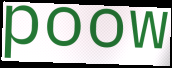
poow